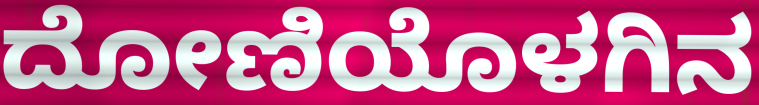
ದೋಣಿಯೊಳಗಿನ